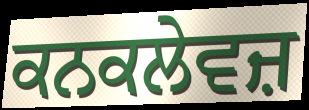
ਕਨਕਲੇਵਜ਼